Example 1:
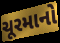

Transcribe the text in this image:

ચૂરમાનો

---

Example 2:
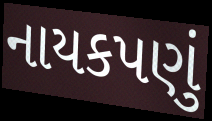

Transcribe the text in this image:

નાયકપણું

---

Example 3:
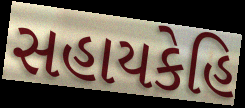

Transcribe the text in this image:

સહાયકેહિ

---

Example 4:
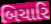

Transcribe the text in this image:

બિચારિ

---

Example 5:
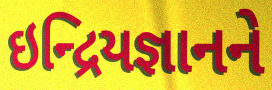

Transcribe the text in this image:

ઇન્દ્રિયજ્ઞાનને